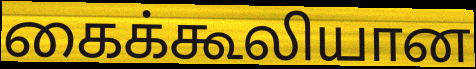
கைக்கூலியான